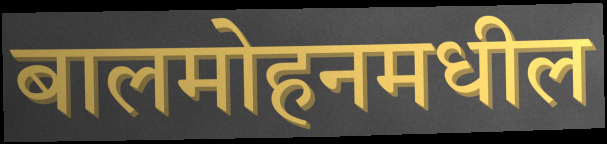
बालमोहनमधील